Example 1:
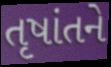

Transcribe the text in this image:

તૃષાંતને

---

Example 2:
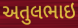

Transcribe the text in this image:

અતુલભાઇ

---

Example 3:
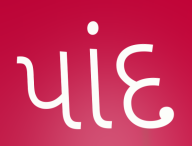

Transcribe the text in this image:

પાંદ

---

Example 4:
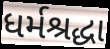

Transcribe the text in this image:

ધર્મશ્રદ્ધા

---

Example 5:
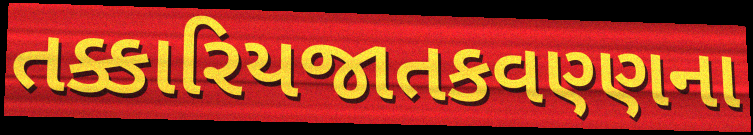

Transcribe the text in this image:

તક્કારિયજાતકવણ્ણના